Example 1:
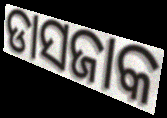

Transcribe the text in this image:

ଡାସଜାକ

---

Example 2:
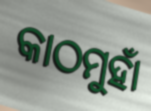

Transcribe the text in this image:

କାଠମୁହାଁ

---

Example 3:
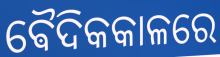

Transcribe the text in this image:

ଵୈଦିକକାଳରେ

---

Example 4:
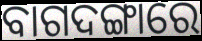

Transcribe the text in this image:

ବାଗଦଙ୍ଗାରେ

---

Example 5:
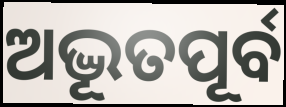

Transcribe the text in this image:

ଅଦ୍ଭୂତପୂର୍ବ